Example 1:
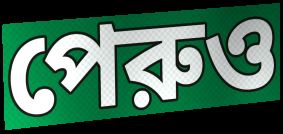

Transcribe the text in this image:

পেরুও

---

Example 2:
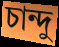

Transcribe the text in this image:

চান্দু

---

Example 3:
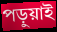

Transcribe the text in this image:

পড়ুয়াই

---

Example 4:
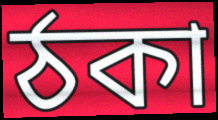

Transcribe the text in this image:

ঠকা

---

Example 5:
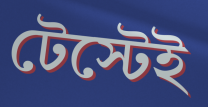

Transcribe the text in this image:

টেস্টেই